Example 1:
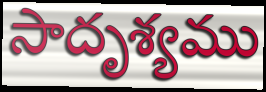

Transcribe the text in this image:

సాదృశ్యము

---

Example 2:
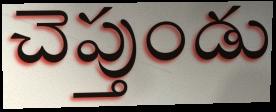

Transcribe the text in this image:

చెప్తుండు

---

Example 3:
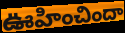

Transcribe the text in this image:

ఊహించిందా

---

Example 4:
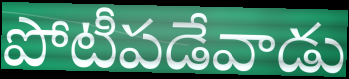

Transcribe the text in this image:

పోటీపడేవాడు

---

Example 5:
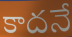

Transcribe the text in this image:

కాదనే